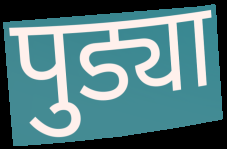
पुड्या